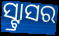
ସ୍ଟ୍ରାସର